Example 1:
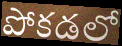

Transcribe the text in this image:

పోకడలో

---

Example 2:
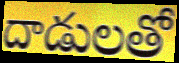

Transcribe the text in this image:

దాడులతో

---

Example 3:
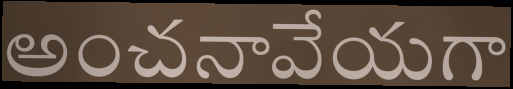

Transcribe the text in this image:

అంచనావేయగా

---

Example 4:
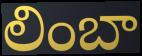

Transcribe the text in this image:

లింబా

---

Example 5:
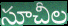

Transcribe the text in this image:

సూచీల